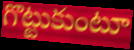
గొట్టుకుంటూ